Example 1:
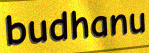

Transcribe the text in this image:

budhanu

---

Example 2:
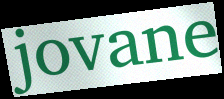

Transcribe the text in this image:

jovane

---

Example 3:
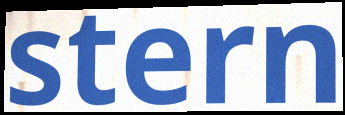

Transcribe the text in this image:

stern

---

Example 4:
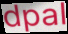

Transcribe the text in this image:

dpal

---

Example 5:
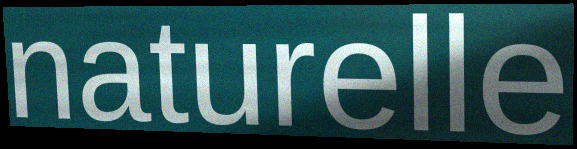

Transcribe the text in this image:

naturelle